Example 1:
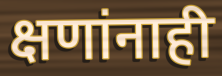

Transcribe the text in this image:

क्षणांनाही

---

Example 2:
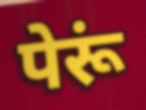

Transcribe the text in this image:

पेरूं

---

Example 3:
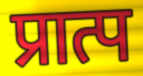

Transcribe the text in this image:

प्रात्प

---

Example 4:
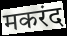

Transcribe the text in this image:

मकरंद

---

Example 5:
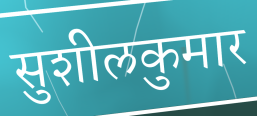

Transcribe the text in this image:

सुशीलकुमार